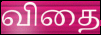
விதை